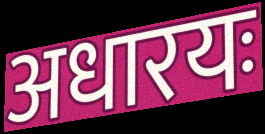
अधारयः